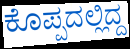
ಕೊಪ್ಪದಲ್ಲಿದ್ದ